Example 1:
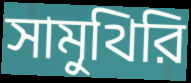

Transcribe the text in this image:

সামুথিরি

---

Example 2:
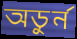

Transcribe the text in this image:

অডুর্ন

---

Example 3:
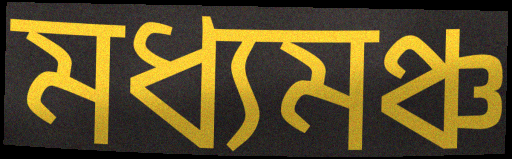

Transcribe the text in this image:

মধ্যমঞ্চ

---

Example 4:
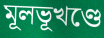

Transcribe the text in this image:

মূলভূখণ্ডে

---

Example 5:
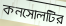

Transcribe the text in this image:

কনসোলটির